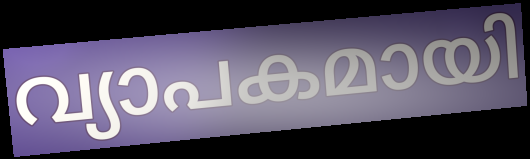
വ്യാപകമായി